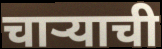
चाऱ्याची